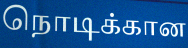
நொடிக்கான